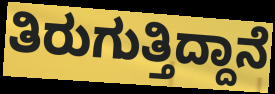
ತಿರುಗುತ್ತಿದ್ದಾನೆ